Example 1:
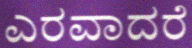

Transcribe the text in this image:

ಎರವಾದರೆ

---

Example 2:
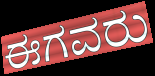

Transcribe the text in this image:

ಈಗವರು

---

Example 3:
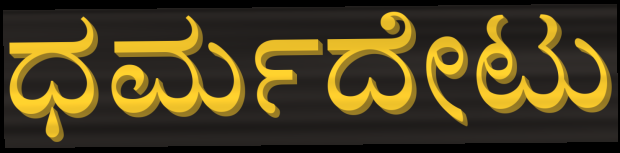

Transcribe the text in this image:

ಧರ್ಮದೇಟು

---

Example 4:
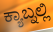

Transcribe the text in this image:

ಕ್ಯಾಬ್ನಲ್ಲಿ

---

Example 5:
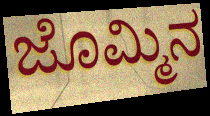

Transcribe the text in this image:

ಜೊಮ್ಮಿನ